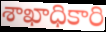
శాఖాధికారి